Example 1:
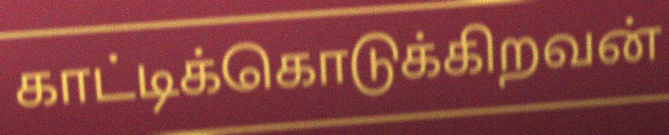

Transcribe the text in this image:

காட்டிக்கொடுக்கிறவன்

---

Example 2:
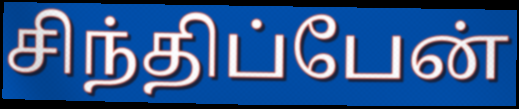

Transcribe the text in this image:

சிந்திப்பேன்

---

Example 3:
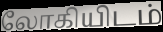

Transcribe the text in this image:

லோகியிடம்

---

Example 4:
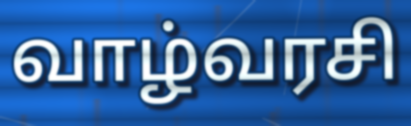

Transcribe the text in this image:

வாழ்வரசி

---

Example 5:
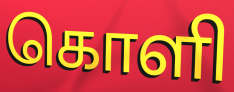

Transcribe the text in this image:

கொளி